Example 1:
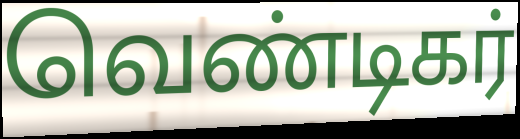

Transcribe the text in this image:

வெண்டிகர்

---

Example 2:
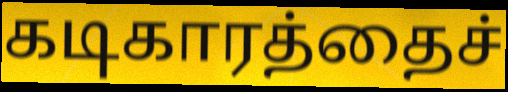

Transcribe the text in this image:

கடிகாரத்தைச்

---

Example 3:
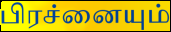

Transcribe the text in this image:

பிரச்னையும்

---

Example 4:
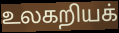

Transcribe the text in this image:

உலகறியக்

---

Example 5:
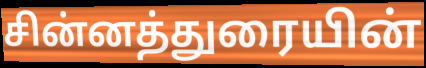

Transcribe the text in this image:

சின்னத்துரையின்